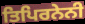
ਤਿਪਿਰਨੇਨੀ